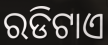
ରଡିଟାଏ